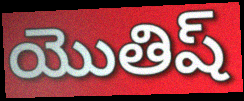
యొతిష్